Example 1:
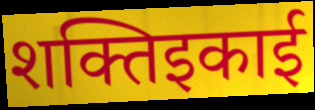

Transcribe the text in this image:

शक्तिइकाई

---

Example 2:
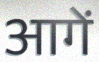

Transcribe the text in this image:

आगें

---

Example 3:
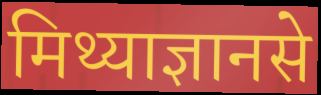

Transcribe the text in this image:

मिथ्याज्ञानसे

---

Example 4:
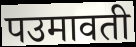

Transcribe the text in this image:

पउमावती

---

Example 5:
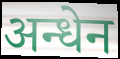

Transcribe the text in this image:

अन्धेन